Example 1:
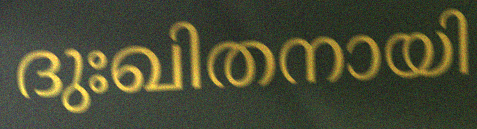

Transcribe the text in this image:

ദുഃഖിതനായി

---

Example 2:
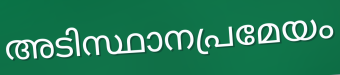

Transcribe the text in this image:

അടിസ്ഥാനപ്രമേയം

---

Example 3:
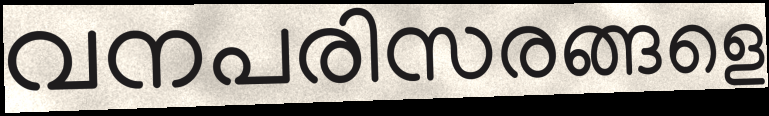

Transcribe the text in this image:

വനപരിസരങ്ങളെ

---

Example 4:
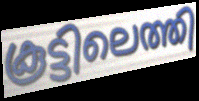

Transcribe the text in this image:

കൂട്ടിലെത്തി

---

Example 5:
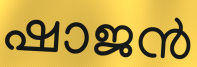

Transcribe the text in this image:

ഷാജൻ